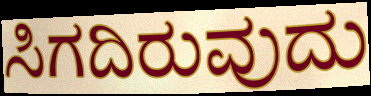
ಸಿಗದಿರುವುದು